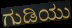
ಗುಡಿಯು